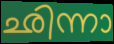
ഛിന്നാ